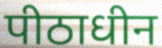
पीठाधीन